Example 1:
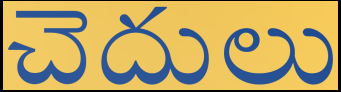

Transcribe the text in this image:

చెదులు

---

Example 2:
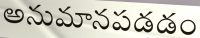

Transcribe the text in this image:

అనుమానపడడం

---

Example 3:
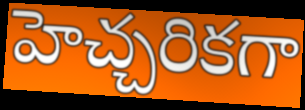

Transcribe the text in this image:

హెచ్చరికగా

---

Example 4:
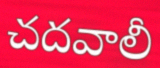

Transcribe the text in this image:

చదవాలీ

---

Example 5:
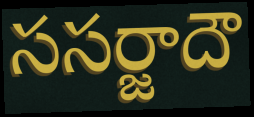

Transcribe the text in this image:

ససర్జాదౌ